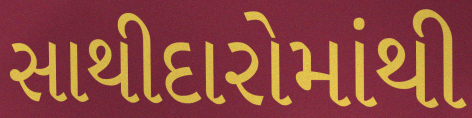
સાથીદારોમાંથી